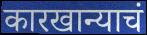
कारखान्याचं